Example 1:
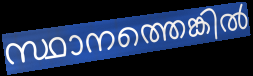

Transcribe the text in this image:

സ്ഥാനത്തെങ്കിൽ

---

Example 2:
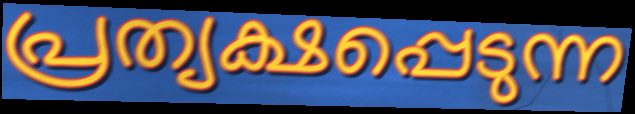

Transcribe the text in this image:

പ്രത്യക്ഷപ്പെടുന്ന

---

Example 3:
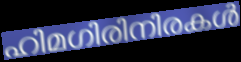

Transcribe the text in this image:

ഹിമഗിരിനിരകൾ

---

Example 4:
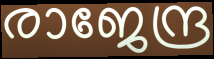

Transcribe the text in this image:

രാജേന്ദ്ര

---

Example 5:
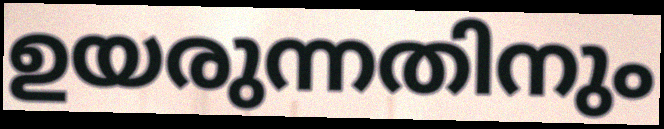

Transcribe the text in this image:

ഉയരുന്നതിനും